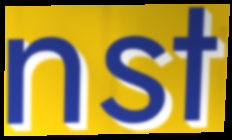
nst